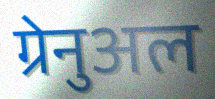
ग्रेनुअल